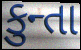
કુન્તા